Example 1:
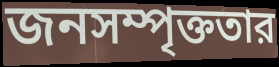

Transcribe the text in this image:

জনসম্পৃক্ততার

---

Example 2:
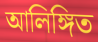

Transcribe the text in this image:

আলিঙ্গিত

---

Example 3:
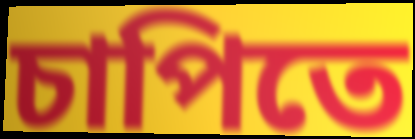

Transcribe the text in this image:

চাপিতে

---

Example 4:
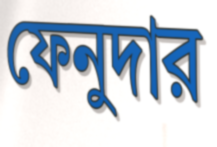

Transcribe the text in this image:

ফেনুদার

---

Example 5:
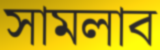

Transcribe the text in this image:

সামলাব